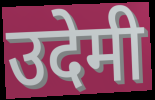
उदेमी